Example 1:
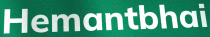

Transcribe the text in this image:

Hemantbhai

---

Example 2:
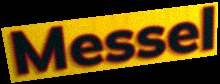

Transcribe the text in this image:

Messel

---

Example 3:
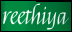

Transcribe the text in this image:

reethiya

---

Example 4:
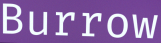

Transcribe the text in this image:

Burrow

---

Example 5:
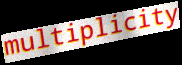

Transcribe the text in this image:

multiplicity